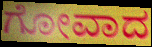
ಗೋವಾದ